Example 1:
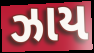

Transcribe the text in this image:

ઝાય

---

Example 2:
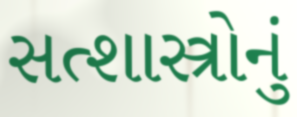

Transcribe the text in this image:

સત્શાસ્ત્રોનું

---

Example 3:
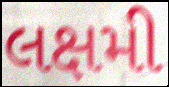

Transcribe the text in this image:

લક્ષમી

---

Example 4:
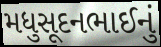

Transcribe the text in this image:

મધુસૂદનભાઈનું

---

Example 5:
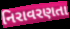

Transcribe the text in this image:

નિરાવરણતા